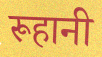
रूहानी